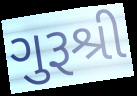
ગુરૂશ્રી